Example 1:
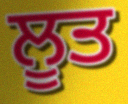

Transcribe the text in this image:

ਲੂਤ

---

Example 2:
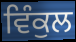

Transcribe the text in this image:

ਵਿੰਕੁਲ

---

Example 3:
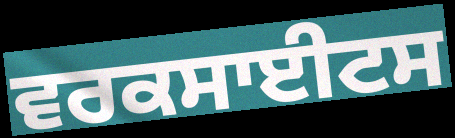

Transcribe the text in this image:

ਵਰਕਸਾਈਟਸ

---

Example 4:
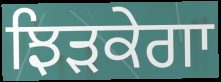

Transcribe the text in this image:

ਝਿੜਕੇਗਾ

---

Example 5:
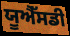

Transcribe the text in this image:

ਯੂਐੱਸਡੀ